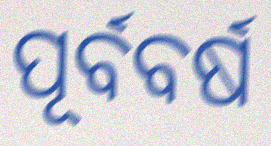
ପୂର୍ବବର୍ଷ